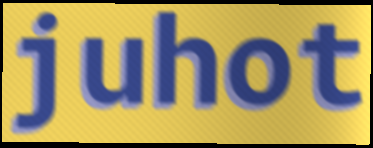
juhot